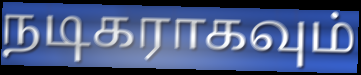
நடிகராகவும்